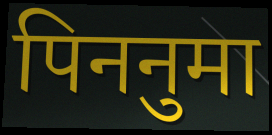
पिननुमा